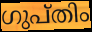
ഗുപ്തിം